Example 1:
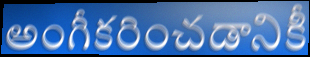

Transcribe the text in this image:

అంగీకరించడానికీ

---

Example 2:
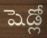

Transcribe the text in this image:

షెడ్లో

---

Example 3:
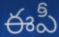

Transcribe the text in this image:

ఈపీ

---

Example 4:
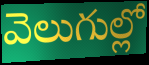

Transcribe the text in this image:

వెలుగుల్లో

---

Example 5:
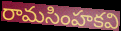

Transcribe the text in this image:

రామసింహకవి